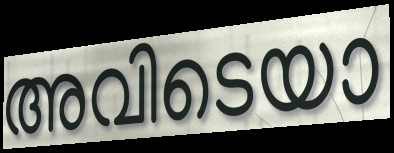
അവിടെയാ